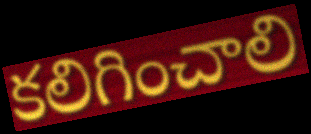
కలిగించాలి